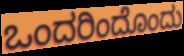
ಒಂದರಿಂದೊಂದು